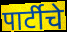
पार्टीचे